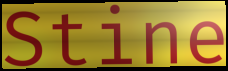
Stine